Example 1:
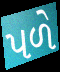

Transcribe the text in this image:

પળે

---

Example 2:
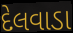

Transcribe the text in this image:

દેલવાડા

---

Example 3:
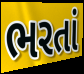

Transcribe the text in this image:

ભરતાં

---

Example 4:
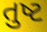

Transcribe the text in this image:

તુષ્ટ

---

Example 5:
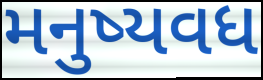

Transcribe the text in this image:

મનુષ્યવધ